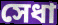
সেধা